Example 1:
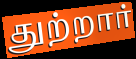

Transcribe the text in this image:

துற்றார்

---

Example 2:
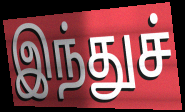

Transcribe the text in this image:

இந்துச்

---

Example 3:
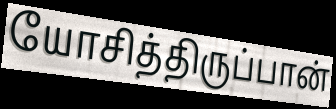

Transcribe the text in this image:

யோசித்திருப்பான்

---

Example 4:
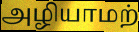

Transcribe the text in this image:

அழியாமற்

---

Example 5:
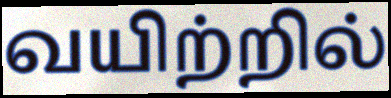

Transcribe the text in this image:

வயிற்றில்